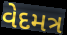
વેદમત્ર